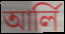
আর্লি